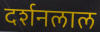
दर्शनलाल